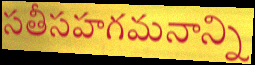
సతీసహగమనాన్ని